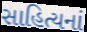
સાહિત્યનાં